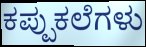
ಕಪ್ಪುಕಲೆಗಳು